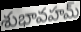
శుభావహమ్